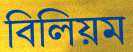
বিলিয়ম